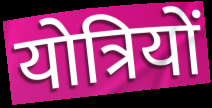
योत्रियों